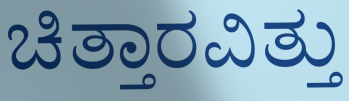
ಚಿತ್ತಾರವಿತ್ತು